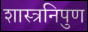
शास्त्रनिपुण